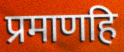
प्रमाणहि